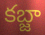
కబ్జా